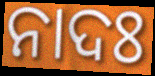
ନାଦଃ